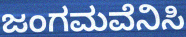
ಜಂಗಮವೆನಿಸಿ